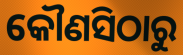
କୌଣସିଠାରୁ